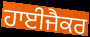
ਹਾਈਜੈਕਰ